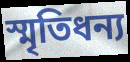
স্মৃতিধন্য